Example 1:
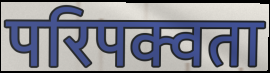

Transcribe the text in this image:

परिपक्वता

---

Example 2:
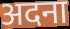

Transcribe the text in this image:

अदना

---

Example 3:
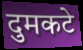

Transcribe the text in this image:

दुमकटे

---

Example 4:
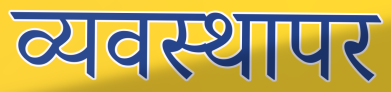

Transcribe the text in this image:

व्यवस्थापर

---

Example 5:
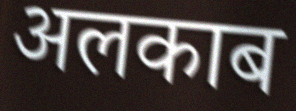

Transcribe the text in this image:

अलकाब